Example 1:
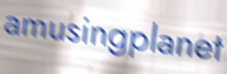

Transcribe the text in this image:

amusingplanet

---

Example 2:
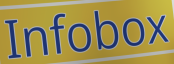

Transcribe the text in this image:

Infobox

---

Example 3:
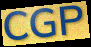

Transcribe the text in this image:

CGP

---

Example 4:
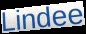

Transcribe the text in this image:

Lindee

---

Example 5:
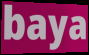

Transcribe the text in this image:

baya